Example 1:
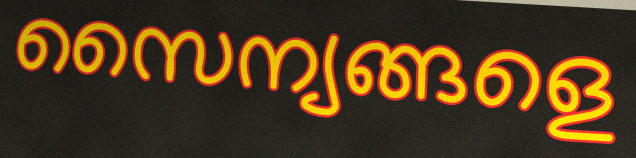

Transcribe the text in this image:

സൈന്യങ്ങളെ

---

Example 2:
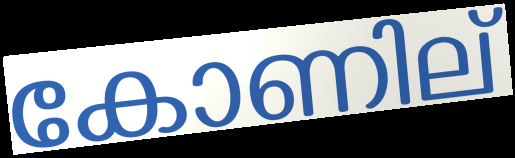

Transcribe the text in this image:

കോണില്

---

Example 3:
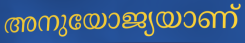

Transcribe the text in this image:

അനുയോജ്യയാണ്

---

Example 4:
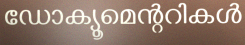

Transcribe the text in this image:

ഡോക്യൂമെന്ററികൾ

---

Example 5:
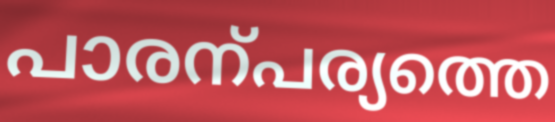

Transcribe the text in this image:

പാരന്പര്യത്തെ